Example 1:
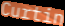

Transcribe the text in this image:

Curtin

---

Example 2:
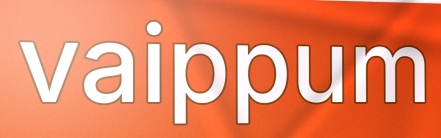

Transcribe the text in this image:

vaippum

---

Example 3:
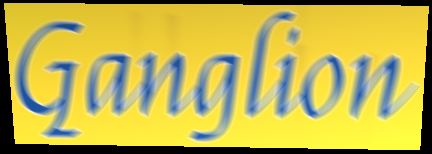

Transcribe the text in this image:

Ganglion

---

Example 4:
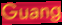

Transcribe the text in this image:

Guang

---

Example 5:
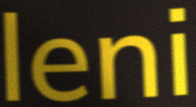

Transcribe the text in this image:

leni